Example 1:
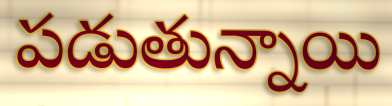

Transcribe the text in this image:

పడుతున్నాయి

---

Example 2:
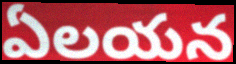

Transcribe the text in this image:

ఏలయన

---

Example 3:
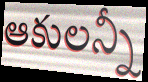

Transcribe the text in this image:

ఆకులన్నీ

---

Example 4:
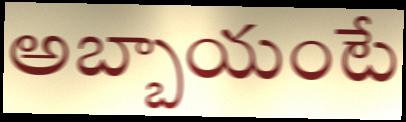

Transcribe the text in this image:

అబ్బాయంటే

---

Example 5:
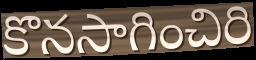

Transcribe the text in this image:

కొనసాగించిరి